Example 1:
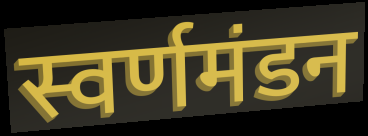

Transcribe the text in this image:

स्वर्णमंडन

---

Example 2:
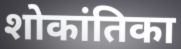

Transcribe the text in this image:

शोकांतिका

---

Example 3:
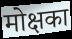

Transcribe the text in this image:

मोक्षका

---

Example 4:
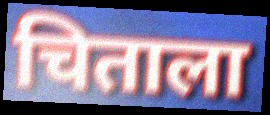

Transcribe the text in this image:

चिताला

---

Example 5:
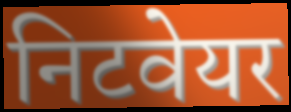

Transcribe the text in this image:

निटवेयर